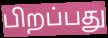
பிறப்பது